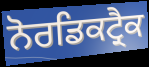
ਨੋਰਡਿਕਟ੍ਰੈਕ